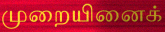
முறையினைக்